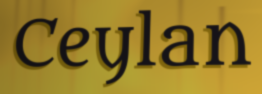
Ceylan